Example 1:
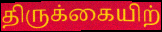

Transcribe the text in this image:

திருக்கையிற்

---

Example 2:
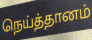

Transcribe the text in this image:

நெய்த்தானம்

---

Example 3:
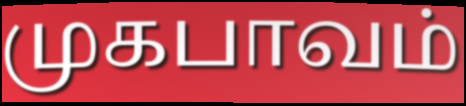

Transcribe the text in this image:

முகபாவம்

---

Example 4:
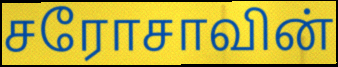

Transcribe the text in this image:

சரோசாவின்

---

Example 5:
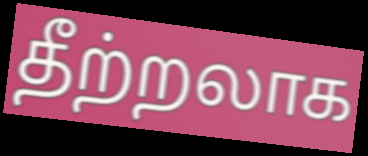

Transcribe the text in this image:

தீற்றலாக